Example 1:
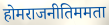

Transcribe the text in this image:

होमराजनीतिममता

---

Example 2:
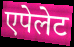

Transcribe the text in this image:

एपेलेट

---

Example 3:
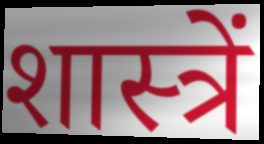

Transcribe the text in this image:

शास्त्रें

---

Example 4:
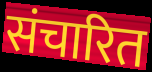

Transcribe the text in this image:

संचारित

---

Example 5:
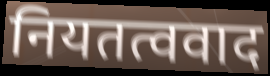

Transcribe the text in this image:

नियतत्ववाद